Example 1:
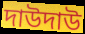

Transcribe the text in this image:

দাউদাউ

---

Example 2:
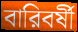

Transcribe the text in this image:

বারিবর্ষী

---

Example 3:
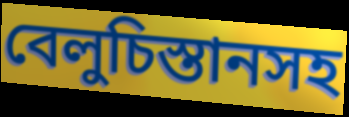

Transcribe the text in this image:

বেলুচিস্তানসহ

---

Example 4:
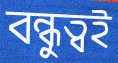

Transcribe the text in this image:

বন্ধুত্বই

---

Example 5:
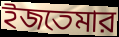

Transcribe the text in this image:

ইজতেমার